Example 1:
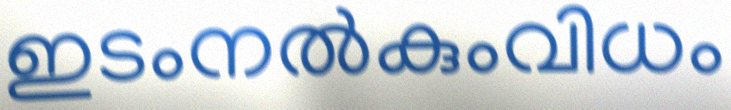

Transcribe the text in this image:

ഇടംനൽകുംവിധം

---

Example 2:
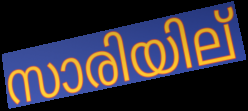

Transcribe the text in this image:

സാരിയില്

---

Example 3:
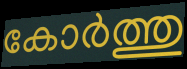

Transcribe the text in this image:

കോർത്തു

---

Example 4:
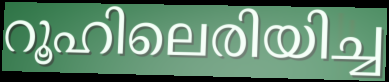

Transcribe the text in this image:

റൂഹിലെരിയിച്ച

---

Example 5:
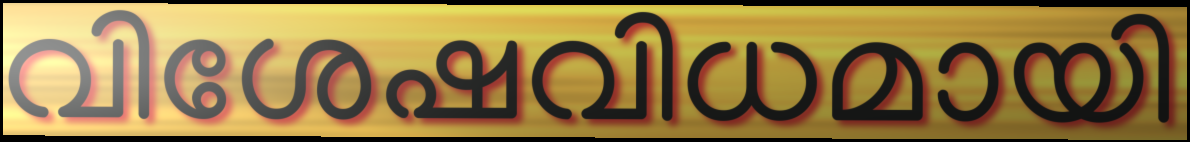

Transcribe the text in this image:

വിശേഷവിധമായി